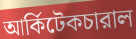
আর্কিটেকচারাল